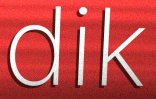
dik